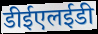
डीईएलईडी